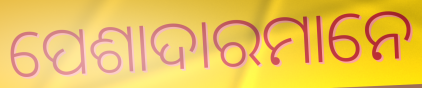
ପେଶାଦାରମାନେ